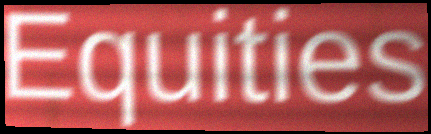
Equities